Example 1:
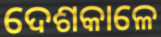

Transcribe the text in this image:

ଦେଶକାଳେ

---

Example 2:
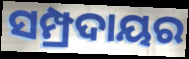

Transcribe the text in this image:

ସମ୍ପ୍ରଦାୟର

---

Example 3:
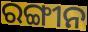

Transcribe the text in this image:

ରଙ୍ଗୀନ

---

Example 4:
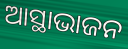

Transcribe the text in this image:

ଆସ୍ଥାଭାଜନ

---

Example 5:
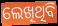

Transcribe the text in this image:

ଲେଖିଥିବି